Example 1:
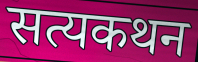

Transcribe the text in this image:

सत्यकथन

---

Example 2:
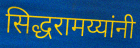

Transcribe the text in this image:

सिद्धरामय्यांनी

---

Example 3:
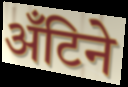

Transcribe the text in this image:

अँटिने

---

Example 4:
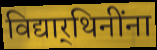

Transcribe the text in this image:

विद्यार्थिनींना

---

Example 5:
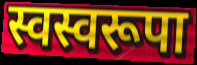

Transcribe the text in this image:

स्वस्वरूपा